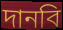
দানবি